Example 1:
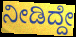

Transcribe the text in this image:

ನೀಡಿದ್ದೇ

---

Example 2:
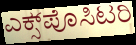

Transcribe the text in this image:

ಎಕ್ಸ್‌ಪೊಸಿಟರಿ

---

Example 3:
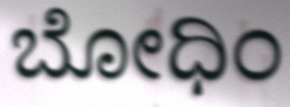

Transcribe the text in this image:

ಬೋಧಿಂ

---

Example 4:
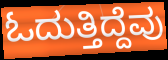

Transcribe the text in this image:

ಓದುತ್ತಿದ್ದೆವು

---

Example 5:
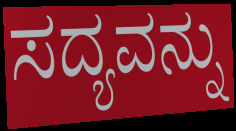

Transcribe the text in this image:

ಸದ್ಯವನ್ನು